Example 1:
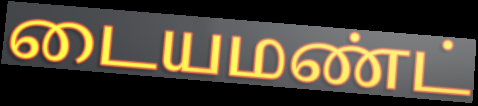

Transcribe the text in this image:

டையமண்ட்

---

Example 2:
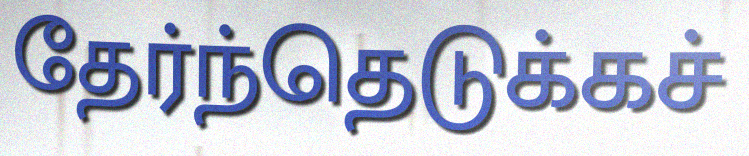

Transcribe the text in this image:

தேர்ந்தெடுக்கச்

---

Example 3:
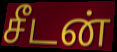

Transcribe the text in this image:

சீடன்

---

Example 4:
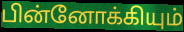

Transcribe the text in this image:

பின்னோக்கியும்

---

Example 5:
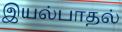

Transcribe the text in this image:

இயல்பாதல்